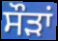
ਸੌੜਾਂ